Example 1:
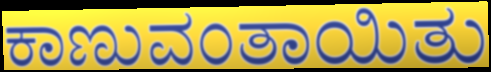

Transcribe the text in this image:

ಕಾಣುವಂತಾಯಿತು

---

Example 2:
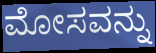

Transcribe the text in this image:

ಮೋಸವನ್ನು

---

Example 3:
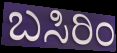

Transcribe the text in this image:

ಬಸಿರಿಂ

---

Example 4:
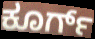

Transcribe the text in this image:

ಕೂರ್ಗ್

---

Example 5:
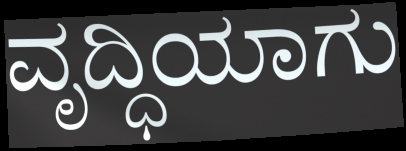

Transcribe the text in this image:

ವೃದ್ಧಿಯಾಗು